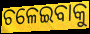
ଚଳେଇବାକୁ